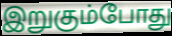
இறுகும்போது